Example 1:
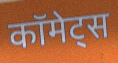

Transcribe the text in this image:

कॉमेट्स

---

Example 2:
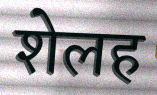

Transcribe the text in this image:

शेलह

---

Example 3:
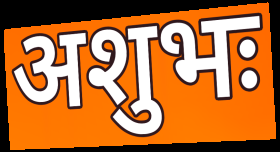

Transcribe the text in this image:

अशुभः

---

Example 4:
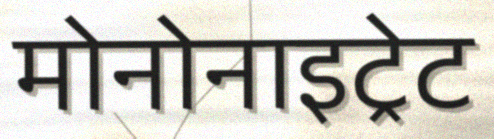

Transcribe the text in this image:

मोनोनाइट्रेट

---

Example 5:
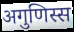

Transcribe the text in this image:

अगुणिस्स